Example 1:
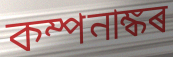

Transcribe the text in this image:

কম্পনাঙ্কৰ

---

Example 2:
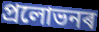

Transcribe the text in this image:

প্ৰলোভনৰ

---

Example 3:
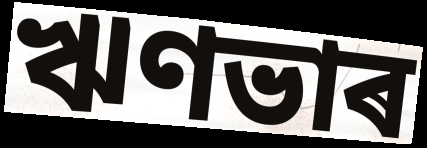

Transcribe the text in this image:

ঋণভাৰ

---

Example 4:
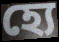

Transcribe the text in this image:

হ্যে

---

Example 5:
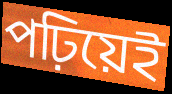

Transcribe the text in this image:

পঢ়িয়েই